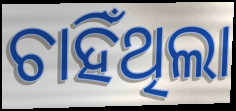
ଚାହିଁଥିଲା